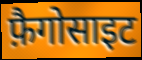
फ़ैगोसाइट